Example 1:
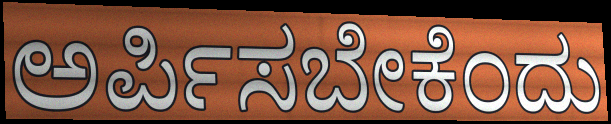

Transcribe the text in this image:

ಅರ್ಪಿಸಬೇಕೆಂದು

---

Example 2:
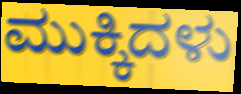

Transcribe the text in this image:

ಮುಕ್ಕಿದಳು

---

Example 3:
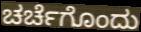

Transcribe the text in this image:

ಚರ್ಚೆಗೊಂದು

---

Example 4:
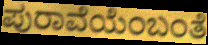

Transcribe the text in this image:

ಪುರಾವೆಯೆಂಬಂತೆ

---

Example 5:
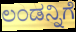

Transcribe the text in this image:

ಲಂಡನ್ನಿಗೆ